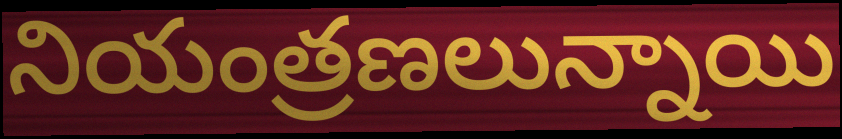
నియంత్రణలున్నాయి